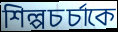
শিল্পচর্চাকে